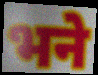
भने